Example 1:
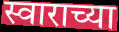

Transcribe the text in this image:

स्वाराच्या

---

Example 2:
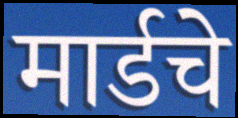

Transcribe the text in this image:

मार्डचे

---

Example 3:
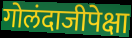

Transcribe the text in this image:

गोलंदाजीपेक्षा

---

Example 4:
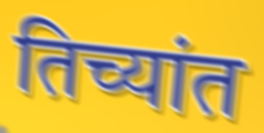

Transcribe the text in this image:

तिच्यांत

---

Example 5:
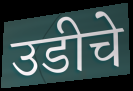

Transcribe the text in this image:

उडीचे